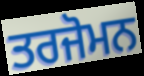
ਤਰਜੋਮਨ